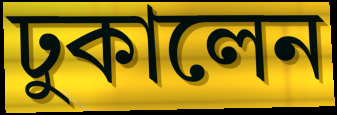
ঢুকালেন